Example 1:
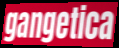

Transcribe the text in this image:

gangetica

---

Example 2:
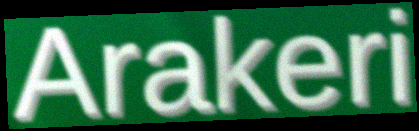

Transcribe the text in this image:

Arakeri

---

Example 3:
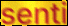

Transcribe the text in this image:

senti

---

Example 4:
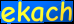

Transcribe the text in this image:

ekach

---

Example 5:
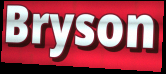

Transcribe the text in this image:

Bryson